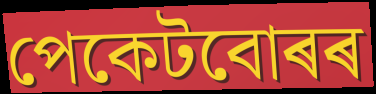
পেকেটবোৰৰ